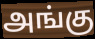
அங்கு